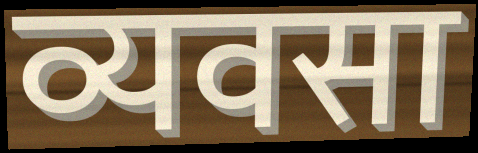
व्यवसा